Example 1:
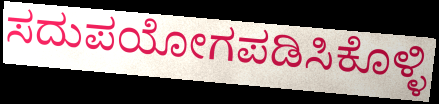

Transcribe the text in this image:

ಸದುಪಯೋಗಪಡಿಸಿಕೊಳ್ಳಿ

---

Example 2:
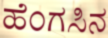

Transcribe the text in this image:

ಹೆಂಗಸಿನ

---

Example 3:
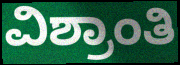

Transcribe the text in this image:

ವಿಶ್ರಾಂತಿ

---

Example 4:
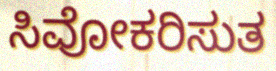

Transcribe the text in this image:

ಸಿವೋಕರಿಸುತ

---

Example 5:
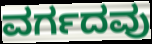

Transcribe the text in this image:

ವರ್ಗದವು